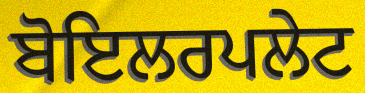
ਬੋਇਲਰਪਲੇਟ